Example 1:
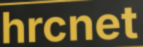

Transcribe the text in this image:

hrcnet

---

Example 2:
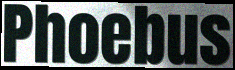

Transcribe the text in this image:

Phoebus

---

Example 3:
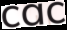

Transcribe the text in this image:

cac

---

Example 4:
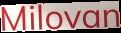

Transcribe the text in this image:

Milovan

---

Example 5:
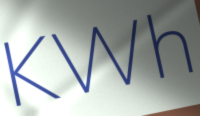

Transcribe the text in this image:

KWh